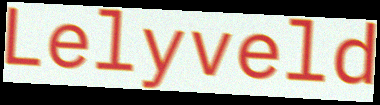
Lelyveld